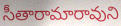
సీతారామారావుని